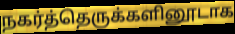
நகர்த்தெருக்களினூடாக